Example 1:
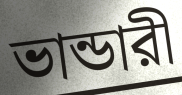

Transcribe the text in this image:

ভান্ডারী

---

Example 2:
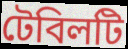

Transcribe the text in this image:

টেবিলটি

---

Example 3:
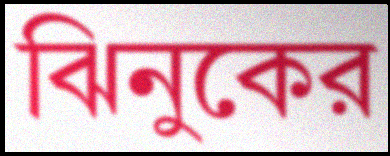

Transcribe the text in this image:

ঝিনুকের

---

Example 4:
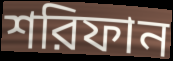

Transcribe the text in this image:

শরিফান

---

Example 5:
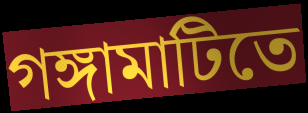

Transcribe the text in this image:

গঙ্গামাটিতে